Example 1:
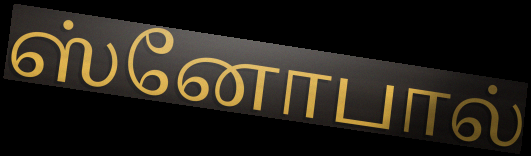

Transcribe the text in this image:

ஸ்னோபால்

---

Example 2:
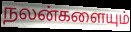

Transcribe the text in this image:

நலன்களையும்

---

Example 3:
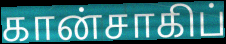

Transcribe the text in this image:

கான்சாகிப்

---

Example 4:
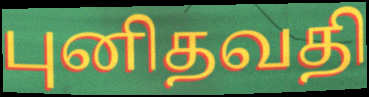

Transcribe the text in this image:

புனிதவதி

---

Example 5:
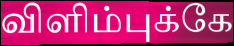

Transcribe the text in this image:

விளிம்புக்கே